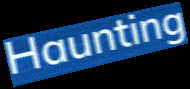
Haunting